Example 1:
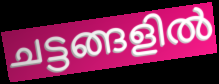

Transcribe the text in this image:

ചട്ടങ്ങളിൽ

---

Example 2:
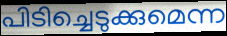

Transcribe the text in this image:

പിടിച്ചെടുക്കുമെന്ന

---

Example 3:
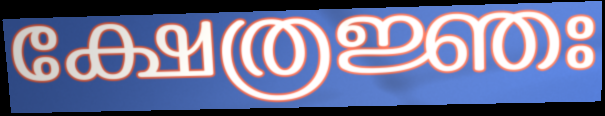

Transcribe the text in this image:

ക്ഷേത്രജ്ഞഃ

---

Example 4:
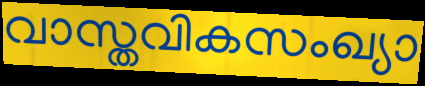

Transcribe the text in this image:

വാസ്തവികസംഖ്യാ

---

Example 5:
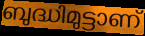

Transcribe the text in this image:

ബുദ്ധിമുട്ടാണ്